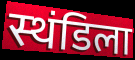
स्थंडिला